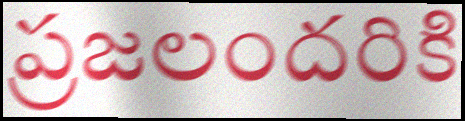
ప్రజలందరికి